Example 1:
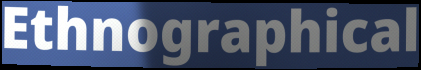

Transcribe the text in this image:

Ethnographical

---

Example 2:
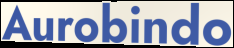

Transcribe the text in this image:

Aurobindo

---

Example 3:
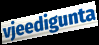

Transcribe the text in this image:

vjeedigunta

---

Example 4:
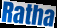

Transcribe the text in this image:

Ratha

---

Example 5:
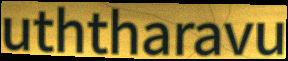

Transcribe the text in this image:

uththaravu